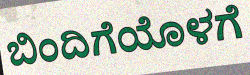
ಬಿಂದಿಗೆಯೊಳಗೆ